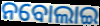
ନବୋଲାଇ